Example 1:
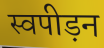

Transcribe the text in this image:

स्वपीड़न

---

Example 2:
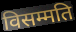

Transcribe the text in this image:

विसम्मति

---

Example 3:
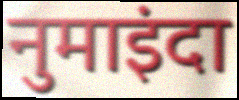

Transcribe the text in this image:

नुमाइंदा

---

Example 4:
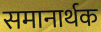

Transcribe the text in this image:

समानार्थक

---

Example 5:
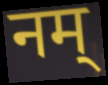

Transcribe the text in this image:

नम्